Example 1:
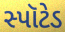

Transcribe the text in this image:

સ્પૉટેડ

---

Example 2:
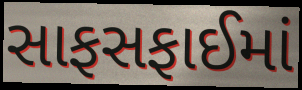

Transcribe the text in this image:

સાફસફાઈમાં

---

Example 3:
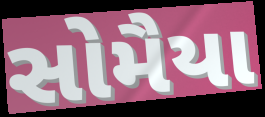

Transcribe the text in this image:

સોમૈયા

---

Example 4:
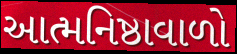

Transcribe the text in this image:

આત્મનિષ્ઠાવાળો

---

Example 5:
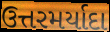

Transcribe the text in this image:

ઉત્તરમર્યાદા